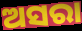
ଅସରା